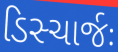
ડિસ્ચાર્જઃ